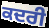
ਕਦਰੀ